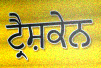
ਟ੍ਰੈਸ਼ਕੇਨ